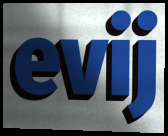
evij